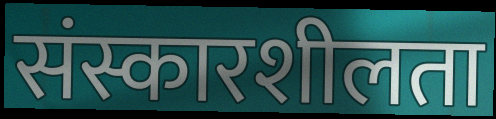
संस्कारशीलता